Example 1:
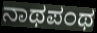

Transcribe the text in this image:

ನಾಥಪಂಥ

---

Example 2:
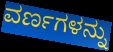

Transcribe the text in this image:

ವರ್ಣಗಳನ್ನು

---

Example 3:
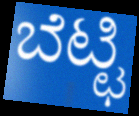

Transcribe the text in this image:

ಬೆಟ್ಟಿ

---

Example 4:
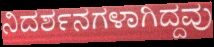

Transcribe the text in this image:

ನಿದರ್ಶನಗಳಾಗಿದ್ದವು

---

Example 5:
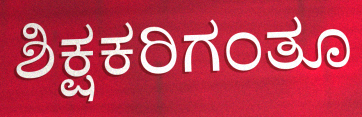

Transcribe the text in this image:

ಶಿಕ್ಷಕರಿಗಂತೂ